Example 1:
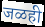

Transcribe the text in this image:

जळही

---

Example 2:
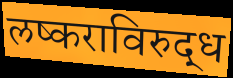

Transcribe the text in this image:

लष्कराविरुद्ध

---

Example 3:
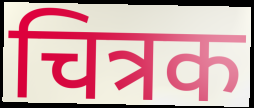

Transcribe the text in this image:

चित्रक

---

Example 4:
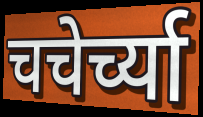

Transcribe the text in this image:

चचेर्च्या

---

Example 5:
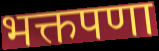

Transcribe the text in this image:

भक्तपणा